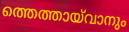
ത്തെത്തായ്‌വാനും